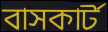
বাসকার্ট